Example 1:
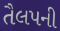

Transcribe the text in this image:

તૈલપની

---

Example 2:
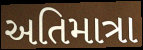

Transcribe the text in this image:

અતિમાત્રા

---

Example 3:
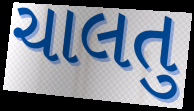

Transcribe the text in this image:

ચાલતુ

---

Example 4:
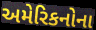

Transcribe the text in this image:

અમેરિકનોના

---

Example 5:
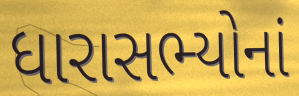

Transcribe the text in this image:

ધારાસભ્યોનાં